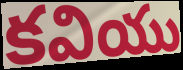
కవియు